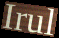
Irul